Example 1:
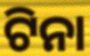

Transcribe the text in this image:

ଟିନା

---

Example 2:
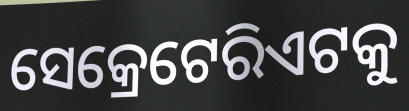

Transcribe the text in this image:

ସେକ୍ରେଟେରିଏଟକୁ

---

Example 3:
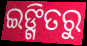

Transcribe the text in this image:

ଇଙ୍ଗିତରୁ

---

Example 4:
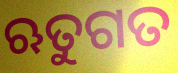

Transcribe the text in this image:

ଋତୁଗତ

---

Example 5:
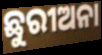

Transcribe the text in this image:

ଛୁରୀଅନା